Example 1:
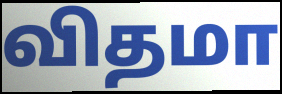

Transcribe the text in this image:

விதமா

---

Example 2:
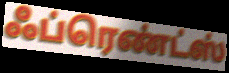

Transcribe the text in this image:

ஃப்ரெண்ட்ஸ்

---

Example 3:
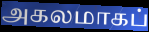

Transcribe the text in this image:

அகலமாகப்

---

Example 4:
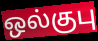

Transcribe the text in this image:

ஒல்குபு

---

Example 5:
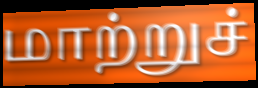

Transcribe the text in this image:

மாற்றுச்